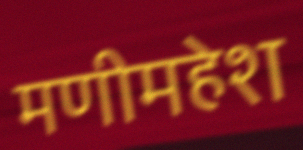
मणीमहेश